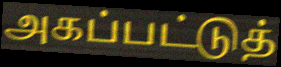
அகப்பட்டுத்